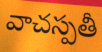
వాచస్పతీ